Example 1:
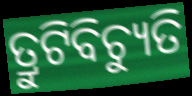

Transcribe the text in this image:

ତ୍ରୁଟିବିଚ୍ୟୁତି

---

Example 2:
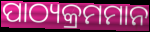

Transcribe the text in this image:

ପାଠ୍ୟକ୍ରମମାନ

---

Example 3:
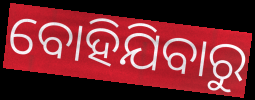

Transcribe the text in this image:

ବୋହିଯିବାରୁ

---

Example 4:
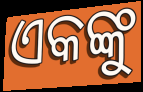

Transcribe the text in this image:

ଏକଙ୍କୁ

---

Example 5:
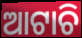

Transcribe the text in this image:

ଆଟାଚି